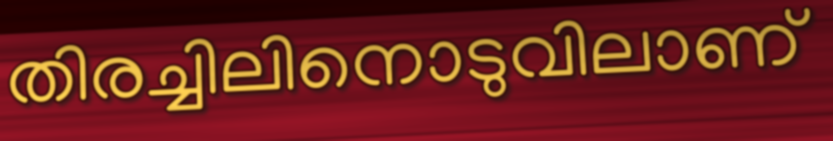
തിരച്ചിലിനൊടുവിലാണ്